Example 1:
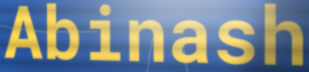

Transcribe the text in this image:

Abinash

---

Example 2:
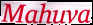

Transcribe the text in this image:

Mahuva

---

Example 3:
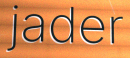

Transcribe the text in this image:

jader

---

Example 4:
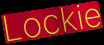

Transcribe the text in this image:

Lockie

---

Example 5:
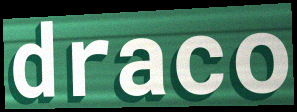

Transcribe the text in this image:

draco